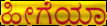
ಹೀಗೆಯಾ